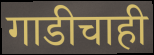
गाडीचाही